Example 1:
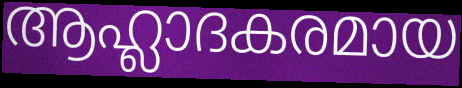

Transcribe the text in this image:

ആഹ്ലാദകരമായ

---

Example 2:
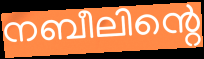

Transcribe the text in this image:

നബീലിന്റെ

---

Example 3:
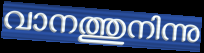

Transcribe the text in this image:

വാനത്തുനിന്നു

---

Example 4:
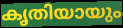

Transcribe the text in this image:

കൃതിയായും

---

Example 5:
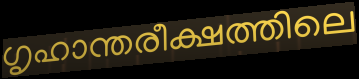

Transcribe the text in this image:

ഗൃഹാന്തരീക്ഷത്തിലെ